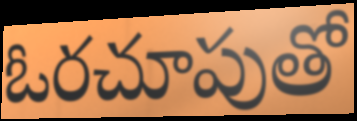
ఓరచూపుతో